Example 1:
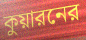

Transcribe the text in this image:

কুয়ারনের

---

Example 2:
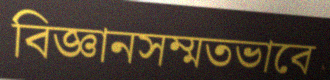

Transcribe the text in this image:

বিজ্ঞানসম্মতভাবে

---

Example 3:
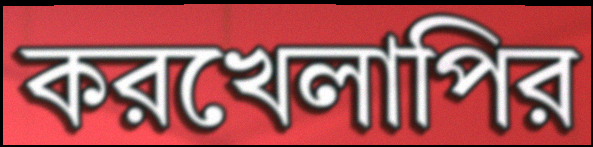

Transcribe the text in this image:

করখেলাপির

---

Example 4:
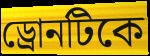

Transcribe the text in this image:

ড্রোনটিকে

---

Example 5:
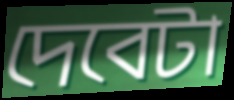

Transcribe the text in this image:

দেবেটা